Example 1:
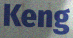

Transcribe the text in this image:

Keng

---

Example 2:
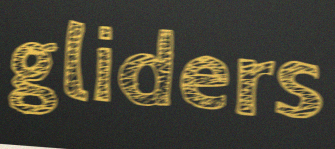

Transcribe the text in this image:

gliders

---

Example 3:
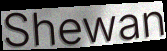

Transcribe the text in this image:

Shewan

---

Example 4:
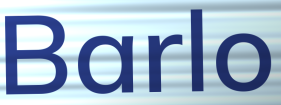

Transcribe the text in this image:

Barlo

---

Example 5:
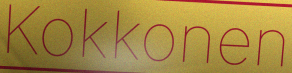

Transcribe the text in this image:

Kokkonen